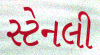
સ્ટેનલી